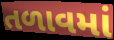
તળાવમાં